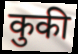
कुकी